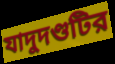
যাদুদণ্ডটির